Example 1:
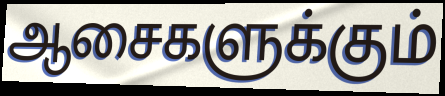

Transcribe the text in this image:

ஆசைகளுக்கும்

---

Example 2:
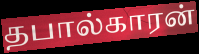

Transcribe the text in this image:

தபால்காரன்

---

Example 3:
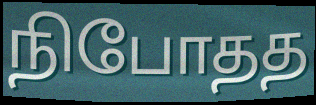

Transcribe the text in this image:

நிபோதத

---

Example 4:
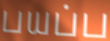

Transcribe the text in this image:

பயப்ப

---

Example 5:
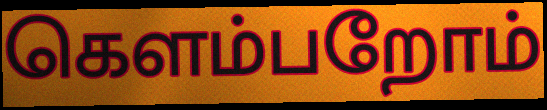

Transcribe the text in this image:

கெளம்பறோம்